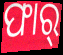
ଫାର୍